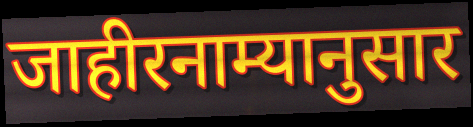
जाहीरनाम्यानुसार